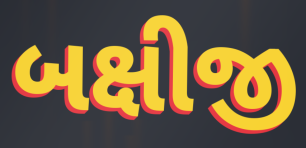
બક્ષીજી